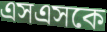
এসএসকে